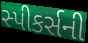
સ્પીકર્સની